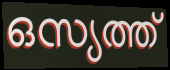
ഒസ്യത്ത്